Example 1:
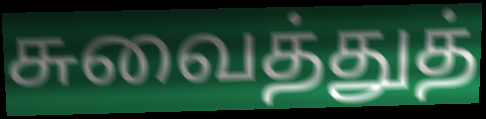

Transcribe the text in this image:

சுவைத்துத்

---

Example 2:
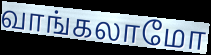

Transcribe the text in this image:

வாங்கலாமோ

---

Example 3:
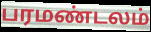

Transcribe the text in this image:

பரமண்டலம்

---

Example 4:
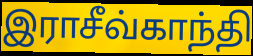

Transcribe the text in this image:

இராசீவ்காந்தி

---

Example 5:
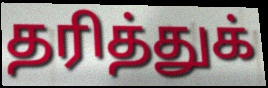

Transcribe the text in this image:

தரித்துக்